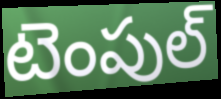
టెంపుల్